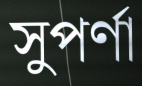
সুপর্ণা